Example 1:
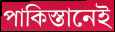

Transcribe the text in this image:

পাকিস্তানেই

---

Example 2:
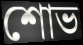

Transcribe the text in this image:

শোভ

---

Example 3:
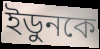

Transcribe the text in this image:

ইডুনকে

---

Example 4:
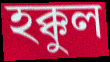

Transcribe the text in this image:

হক্কুল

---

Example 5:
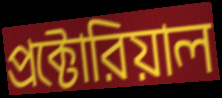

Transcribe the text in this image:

প্রক্টোরিয়াল